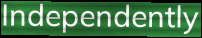
Independently